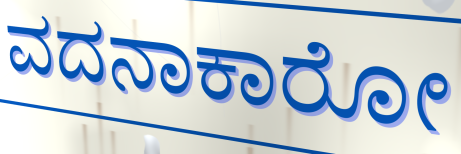
ವದನಾಕಾರೋ